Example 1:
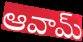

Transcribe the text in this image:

ఆవామ్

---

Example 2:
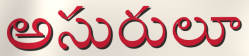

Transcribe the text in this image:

అసురులూ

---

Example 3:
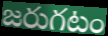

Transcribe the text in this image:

జరుగటం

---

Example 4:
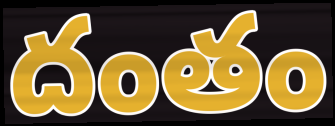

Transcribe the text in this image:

దంతం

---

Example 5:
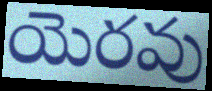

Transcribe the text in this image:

యెరవు